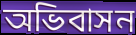
অভিবাসন